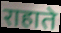
राहाते